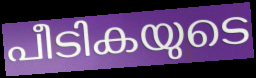
പീടികയുടെ